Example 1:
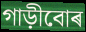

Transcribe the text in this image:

গাড়ীবোৰ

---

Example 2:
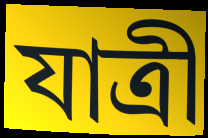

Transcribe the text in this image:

যাত্ৰী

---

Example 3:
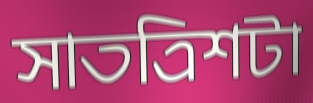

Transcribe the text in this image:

সাতত্ৰিশটা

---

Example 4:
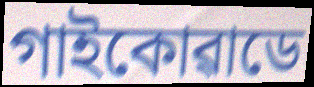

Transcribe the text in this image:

গাইকোৱাডে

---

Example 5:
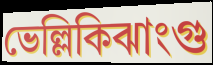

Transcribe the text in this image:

ভেল্লিকিঝাংগু